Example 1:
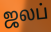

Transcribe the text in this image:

ஜலப்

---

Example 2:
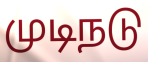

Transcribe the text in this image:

முடிநடு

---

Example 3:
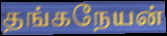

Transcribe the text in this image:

தங்கநேயன்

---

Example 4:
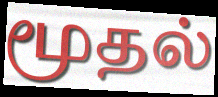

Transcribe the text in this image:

மூதல்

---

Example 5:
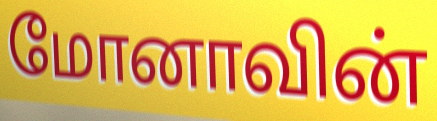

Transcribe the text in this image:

மோனாவின்